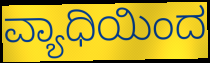
ವ್ಯಾಧಿಯಿಂದ